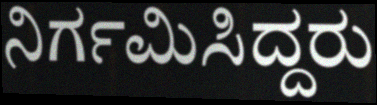
ನಿರ್ಗಮಿಸಿದ್ದರು